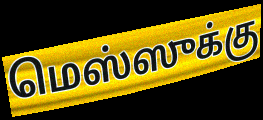
மெஸ்ஸுக்கு